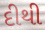
દીથી